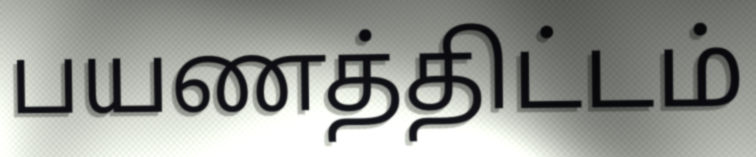
பயணத்திட்டம்